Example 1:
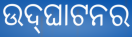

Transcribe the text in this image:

ଉଦ୍‌ଘାଟନର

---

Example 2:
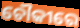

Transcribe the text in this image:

ଚୌକୀରେ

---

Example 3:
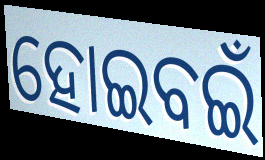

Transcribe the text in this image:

ହୋଇବଇଁ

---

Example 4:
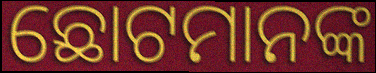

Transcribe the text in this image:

ଛୋଟମାନଙ୍କ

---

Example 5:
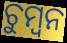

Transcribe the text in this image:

ଚୁମ୍ୱନ